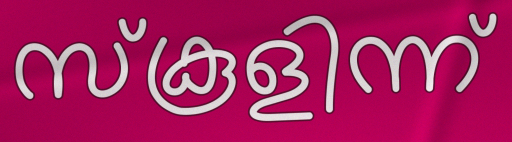
സ്കൂളിന്ന്